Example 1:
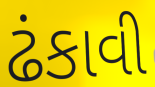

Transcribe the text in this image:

ઢંકાવી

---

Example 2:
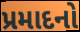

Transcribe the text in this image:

પ્રમાદનો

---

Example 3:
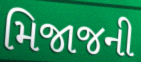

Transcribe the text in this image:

મિજાજની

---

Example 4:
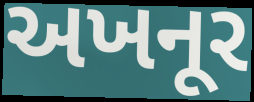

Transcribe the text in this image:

અખનૂર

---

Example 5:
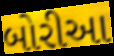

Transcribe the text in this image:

બોરીઆ